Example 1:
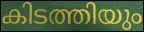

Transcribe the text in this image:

കിടത്തിയും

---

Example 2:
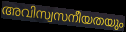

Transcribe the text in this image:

അവിസ്വസനീയതയും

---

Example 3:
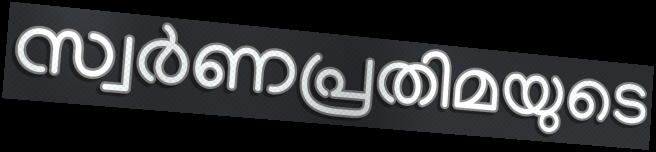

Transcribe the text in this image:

സ്വർണപ്രതിമയുടെ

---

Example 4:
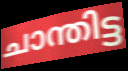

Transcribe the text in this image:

ചാന്തിട്ട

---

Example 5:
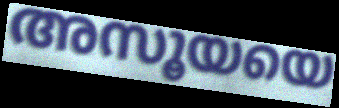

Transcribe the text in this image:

അസൂയയെ